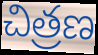
చిత్రణ